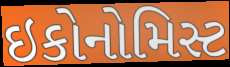
ઇકોનોમિસ્ટ